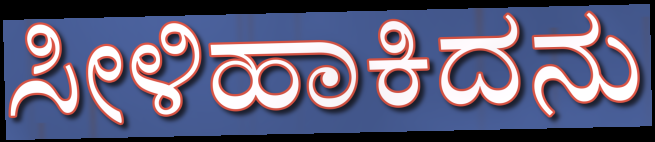
ಸೀಳಿಹಾಕಿದನು